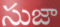
సుజా